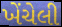
ખેંચેલી